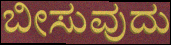
ಬೀಸುವುದು